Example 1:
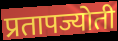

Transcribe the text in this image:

प्रतापज्योती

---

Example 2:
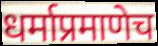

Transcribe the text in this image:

धर्माप्रमाणेच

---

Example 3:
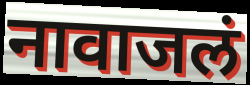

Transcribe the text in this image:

नावाजलं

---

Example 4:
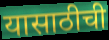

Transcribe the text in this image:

यासाठीची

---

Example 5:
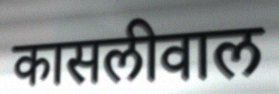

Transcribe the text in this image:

कासलीवाल